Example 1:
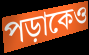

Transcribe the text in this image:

পড়াকেও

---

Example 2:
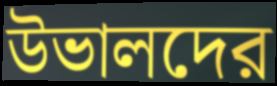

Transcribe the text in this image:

উভালদের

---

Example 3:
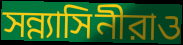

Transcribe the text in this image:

সন্ন্যাসিনীরাও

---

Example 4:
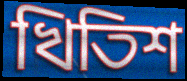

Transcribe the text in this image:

খিতিশ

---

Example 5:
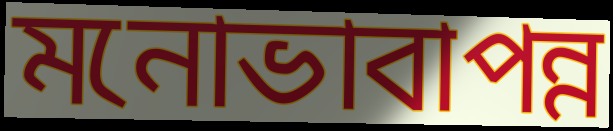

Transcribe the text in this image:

মনোভাবাপন্ন